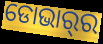
ଡୋଭାର୍‌ର